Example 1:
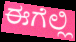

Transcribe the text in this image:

ಈಗೆಲ್ಲಿ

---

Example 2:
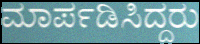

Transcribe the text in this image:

ಮಾರ್ಪಡಿಸಿದ್ದರು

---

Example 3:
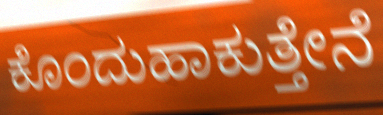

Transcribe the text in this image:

ಕೊಂದುಹಾಕುತ್ತೇನೆ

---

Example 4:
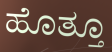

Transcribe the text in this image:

ಹೊತ್ತೂ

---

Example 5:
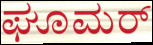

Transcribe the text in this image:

ಘೂಮರ್